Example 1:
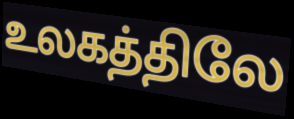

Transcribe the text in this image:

உலகத்திலே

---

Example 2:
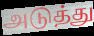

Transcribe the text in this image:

அடுத்து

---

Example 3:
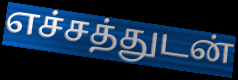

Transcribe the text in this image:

எச்சத்துடன்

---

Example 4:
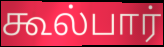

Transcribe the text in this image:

கூல்பார்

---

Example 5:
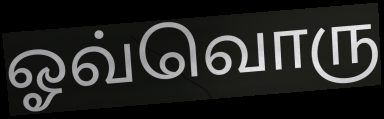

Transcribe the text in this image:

ஓவ்வொரு